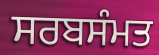
ਸਰਬਸੰਮਤ